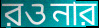
রওনার